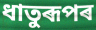
ধাতুৰূপৰ